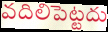
వదిలిపెట్టదు